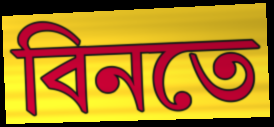
বিনতে